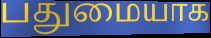
பதுமையாக